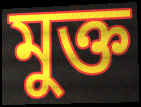
মুক্ত